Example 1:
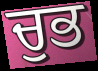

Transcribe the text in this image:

ਚੁਭ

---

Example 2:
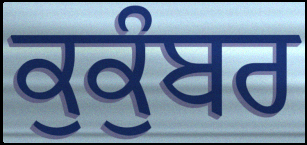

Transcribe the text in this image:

ਕੁਕੁੰਬਰ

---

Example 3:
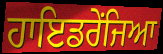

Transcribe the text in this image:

ਹਾਇਡਰੇਂਜਿਆ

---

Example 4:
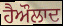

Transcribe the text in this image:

ਹੈਔਲਾਦ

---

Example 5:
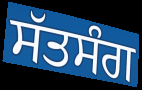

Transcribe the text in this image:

ਸੱਤਸੰਗ